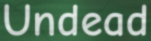
Undead